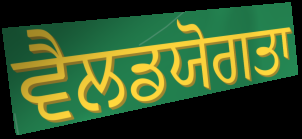
ਵੈਲਡਯੋਗਤਾ